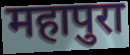
महापुरा